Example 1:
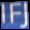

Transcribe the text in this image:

IFJ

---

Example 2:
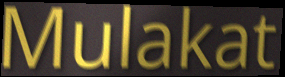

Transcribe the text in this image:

Mulakat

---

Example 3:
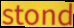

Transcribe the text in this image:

stond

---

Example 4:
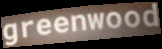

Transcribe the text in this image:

greenwood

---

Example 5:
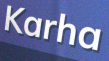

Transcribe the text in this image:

Karha